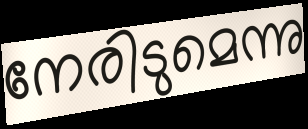
നേരിടുമെന്നു